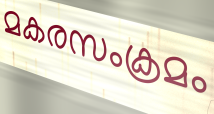
മകരസംക്രമം